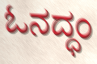
ಓನದ್ಧಂ